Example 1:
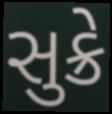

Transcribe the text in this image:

સુક્રે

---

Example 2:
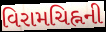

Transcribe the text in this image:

વિરામચિહ્નની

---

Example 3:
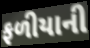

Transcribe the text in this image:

ફળીયાની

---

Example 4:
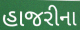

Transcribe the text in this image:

હાજરીના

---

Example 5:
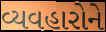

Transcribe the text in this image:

વ્યવહારોને